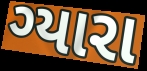
ગ્યારા